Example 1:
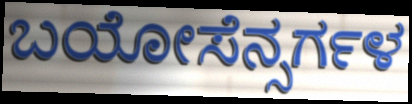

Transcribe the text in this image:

ಬಯೋಸೆನ್ಸರ್ಗಳ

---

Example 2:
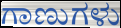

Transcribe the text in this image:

ಗಾಣುಗಳು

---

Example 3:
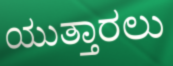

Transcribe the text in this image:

ಯುತ್ತಾರಲು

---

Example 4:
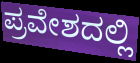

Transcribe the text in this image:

ಪ್ರವೇಶದಲ್ಲಿ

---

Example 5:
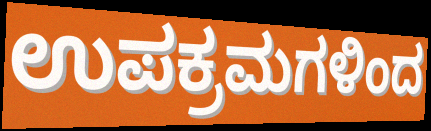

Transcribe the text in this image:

ಉಪಕ್ರಮಗಳಿಂದ